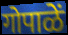
गोपाळें